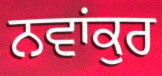
ਨਵਾਂਕੁਰ